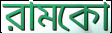
রামকো